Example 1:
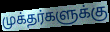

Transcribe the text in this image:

முக்தர்களுக்கு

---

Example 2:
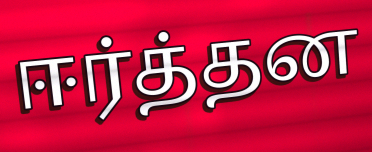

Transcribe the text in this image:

ஈர்த்தன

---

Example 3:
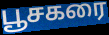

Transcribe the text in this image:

பூசகரை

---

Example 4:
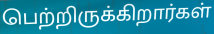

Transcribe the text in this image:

பெற்றிருக்கிறார்கள்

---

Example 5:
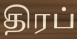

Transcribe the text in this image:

திரப்